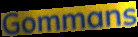
Gommans